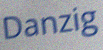
Danzig